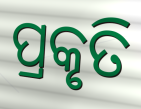
ପ୍ରକୃତି